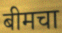
बीमचा